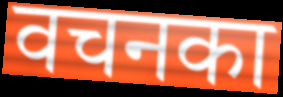
वचनका